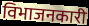
विभाजनकारी